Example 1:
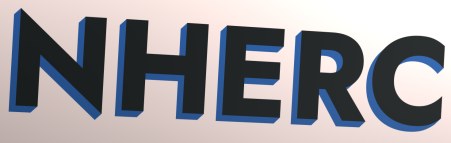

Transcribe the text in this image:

NHERC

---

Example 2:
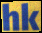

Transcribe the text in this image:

hk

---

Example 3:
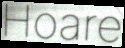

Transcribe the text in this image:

Hoare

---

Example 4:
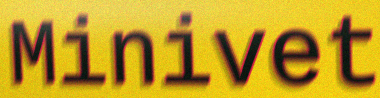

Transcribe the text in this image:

Minivet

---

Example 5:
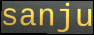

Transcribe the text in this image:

sanju